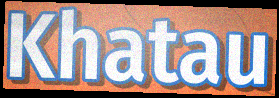
Khatau